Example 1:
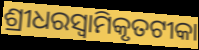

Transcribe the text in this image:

ଶ୍ରୀଧରସ୍ଵାମିକୃତଟୀକା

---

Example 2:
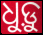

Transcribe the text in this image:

ଧୁଡ଼ୁ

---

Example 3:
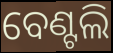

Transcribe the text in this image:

ବେଣ୍ଟଲି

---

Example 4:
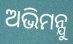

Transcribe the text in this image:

ଅଭିମନ୍ଯୁ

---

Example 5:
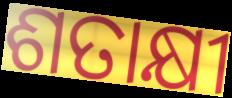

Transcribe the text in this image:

ଶତାକ୍ଷୀ